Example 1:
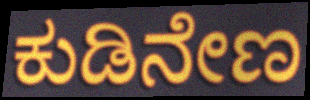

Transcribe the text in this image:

ಕುಡಿನೇಣ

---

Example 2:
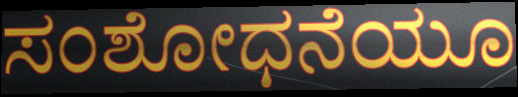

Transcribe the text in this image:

ಸಂಶೋಧನೆಯೂ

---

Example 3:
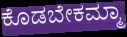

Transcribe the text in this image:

ಕೊಡಬೇಕಮ್ಮಾ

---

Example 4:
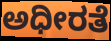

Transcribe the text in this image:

ಅಧೀರತೆ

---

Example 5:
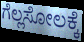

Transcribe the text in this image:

ಗೆಲ್ಲಸೋಲಕ್ಕೆ